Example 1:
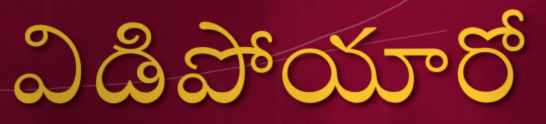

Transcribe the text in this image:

విడిపోయారో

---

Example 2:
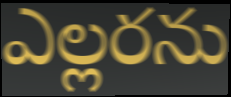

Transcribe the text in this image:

ఎల్లరను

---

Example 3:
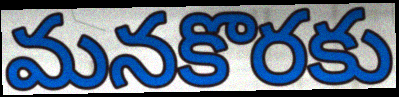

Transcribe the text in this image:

మనకొరకు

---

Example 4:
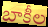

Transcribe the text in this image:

బాకీల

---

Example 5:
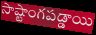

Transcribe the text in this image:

సాష్టాంగపడ్డాయి